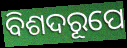
ବିଶଦରୂପେ